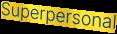
Superpersonal